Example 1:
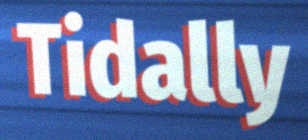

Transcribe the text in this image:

Tidally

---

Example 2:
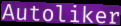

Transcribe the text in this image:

Autoliker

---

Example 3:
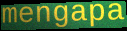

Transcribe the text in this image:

mengapa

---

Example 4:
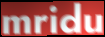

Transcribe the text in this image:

mridu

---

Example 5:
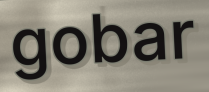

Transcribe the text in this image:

gobar